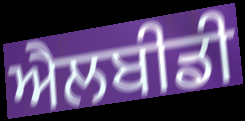
ਐਲਬੀਡੀ